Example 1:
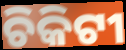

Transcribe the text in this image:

ଚିକିଟୀ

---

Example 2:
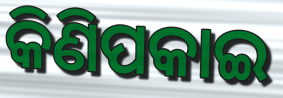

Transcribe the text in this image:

କିଣିପକାଇ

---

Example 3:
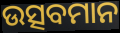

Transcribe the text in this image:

ଉତ୍ସବମାନ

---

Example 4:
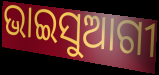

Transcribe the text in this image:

ଭାଇସୁଆଗୀ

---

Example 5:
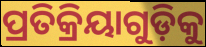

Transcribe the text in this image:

ପ୍ରତିକ୍ରିୟାଗୁଡ଼ିକୁ